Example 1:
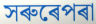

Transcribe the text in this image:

সৰুৰেপৰা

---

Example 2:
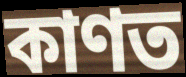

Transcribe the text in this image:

কাণত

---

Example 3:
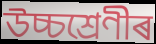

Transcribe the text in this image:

উচ্চশ্ৰেণীৰ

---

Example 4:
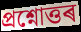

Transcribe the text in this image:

প্ৰশ্নোত্তৰ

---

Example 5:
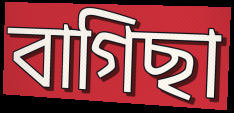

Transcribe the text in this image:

বাগিছা